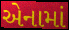
એનામાં